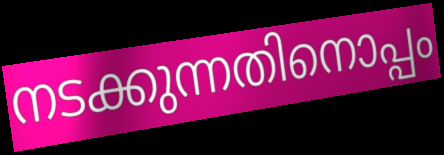
നടക്കുന്നതിനൊപ്പം